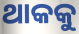
ଥାକକୁ